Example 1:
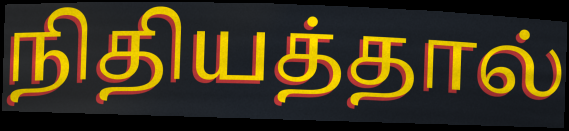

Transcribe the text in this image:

நிதியத்தால்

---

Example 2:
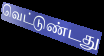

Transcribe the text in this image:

வெட்டுண்டது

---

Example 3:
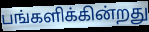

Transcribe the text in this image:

பங்களிக்கின்றது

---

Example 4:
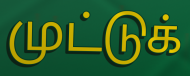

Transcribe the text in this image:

முட்டுக்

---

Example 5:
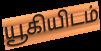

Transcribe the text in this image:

யூகியிடம்